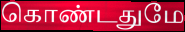
கொண்டதுமே